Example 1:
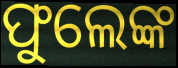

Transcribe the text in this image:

ଫୁଲେଙ୍କ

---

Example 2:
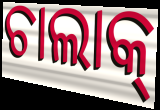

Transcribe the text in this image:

ଚାଲାକ୍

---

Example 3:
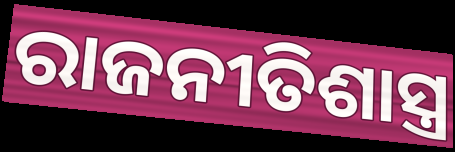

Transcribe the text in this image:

ରାଜନୀତିଶାସ୍ତ୍ର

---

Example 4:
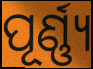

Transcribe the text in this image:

ପୂର୍ଣ୍ଣ୍ୟ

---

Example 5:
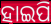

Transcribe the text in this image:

ହାଇପି